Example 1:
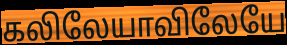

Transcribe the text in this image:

கலிலேயாவிலேயே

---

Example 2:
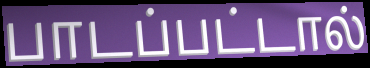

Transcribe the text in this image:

பாடப்பட்டால்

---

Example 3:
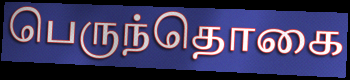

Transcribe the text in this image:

பெருந்தொகை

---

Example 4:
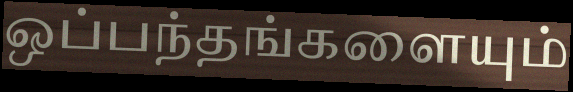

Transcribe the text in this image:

ஒப்பந்தங்களையும்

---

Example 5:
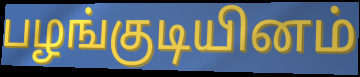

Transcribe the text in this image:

பழங்குடியினம்